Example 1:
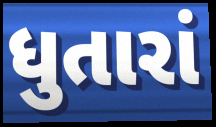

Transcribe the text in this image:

ધુતારાં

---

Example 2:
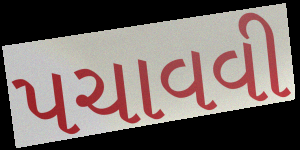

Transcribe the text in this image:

પચાવવી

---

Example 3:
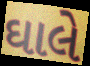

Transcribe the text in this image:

ઘાલે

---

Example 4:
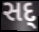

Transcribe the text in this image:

સદ્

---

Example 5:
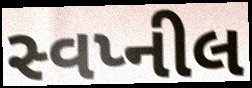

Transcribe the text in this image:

સ્વપ્નીલ